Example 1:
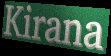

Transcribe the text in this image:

Kirana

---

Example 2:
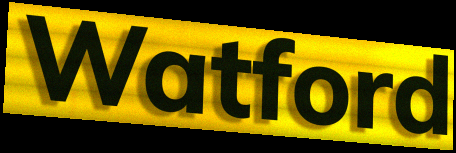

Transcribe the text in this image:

Watford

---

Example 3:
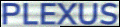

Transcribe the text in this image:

PLEXUS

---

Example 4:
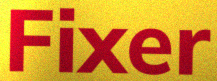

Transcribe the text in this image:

Fixer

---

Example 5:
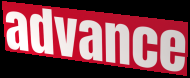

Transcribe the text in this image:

advance